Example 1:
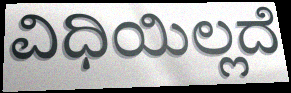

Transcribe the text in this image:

ವಿಧಿಯಿಲ್ಲದೆ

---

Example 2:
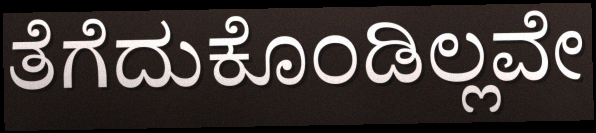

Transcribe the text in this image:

ತೆಗೆದುಕೊಂಡಿಲ್ಲವೇ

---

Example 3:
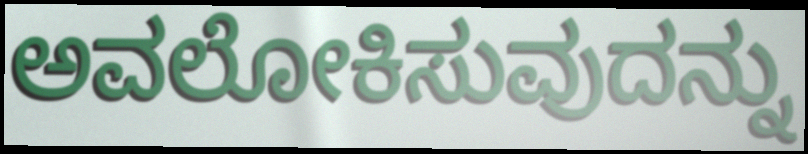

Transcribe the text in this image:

ಅವಲೋಕಿಸುವುದನ್ನು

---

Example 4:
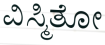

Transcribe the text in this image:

ವಿಸ್ಮಿತೋ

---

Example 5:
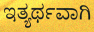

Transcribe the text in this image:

ಇತ್ಯರ್ಥವಾಗಿ